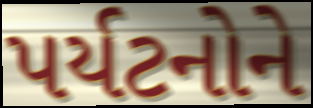
પર્યટનોને